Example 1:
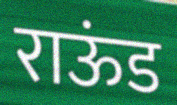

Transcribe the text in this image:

राऊंड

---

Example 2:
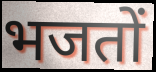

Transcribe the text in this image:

भजतों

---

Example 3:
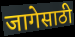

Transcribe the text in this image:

जागेसाठी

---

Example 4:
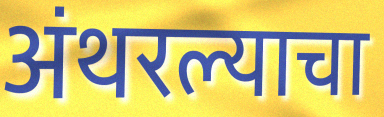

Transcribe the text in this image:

अंथरल्याचा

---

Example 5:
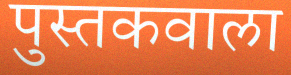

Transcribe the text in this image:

पुस्तकवाला